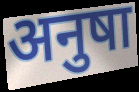
अनुषा